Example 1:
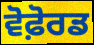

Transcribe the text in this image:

ਵੋਫ਼ੋਰਡ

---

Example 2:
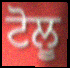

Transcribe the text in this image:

ਟੋਲੂ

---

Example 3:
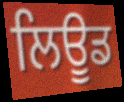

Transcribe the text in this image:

ਲਿਊਡ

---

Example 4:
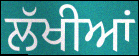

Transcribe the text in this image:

ਲੱਖੀਆਂ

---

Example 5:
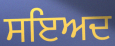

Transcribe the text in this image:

ਸਇਅਦ